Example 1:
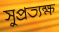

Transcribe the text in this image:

সুপ্রত্যক্ষ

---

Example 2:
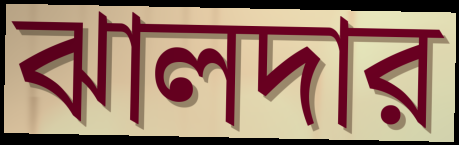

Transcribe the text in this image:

ঝালদার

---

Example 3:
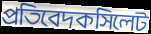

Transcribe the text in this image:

প্রতিবেদকসিলেট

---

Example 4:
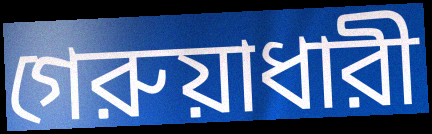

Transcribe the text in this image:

গেরুয়াধারী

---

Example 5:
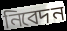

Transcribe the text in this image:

নিবেদন